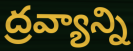
ద్రవ్యాన్ని